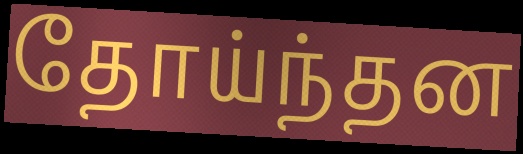
தோய்ந்தன